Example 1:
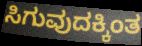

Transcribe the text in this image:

ಸಿಗುವುದಕ್ಕಿಂತ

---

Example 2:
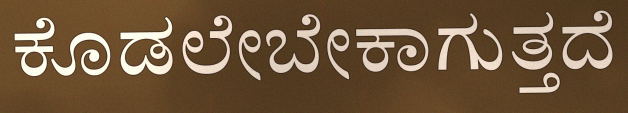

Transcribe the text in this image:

ಕೊಡಲೇಬೇಕಾಗುತ್ತದೆ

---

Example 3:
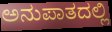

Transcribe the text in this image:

ಅನುಪಾತದಲ್ಲಿ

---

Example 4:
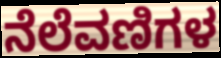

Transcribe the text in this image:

ನೆಲೆವಣಿಗಳ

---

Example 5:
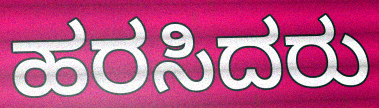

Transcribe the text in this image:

ಹರಸಿದರು